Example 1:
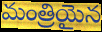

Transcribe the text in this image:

మంత్రియైన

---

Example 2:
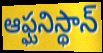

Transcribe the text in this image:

ఆఫ్ఘనిస్థాన్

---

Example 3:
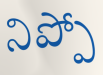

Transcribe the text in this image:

నిప్పో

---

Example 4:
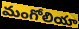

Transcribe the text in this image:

మంగోలియా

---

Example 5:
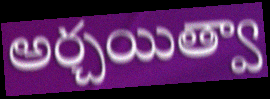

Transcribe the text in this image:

అర్చయిత్వా